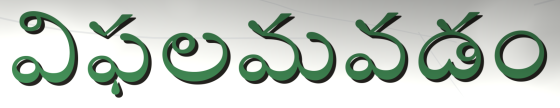
విఫలమవడం